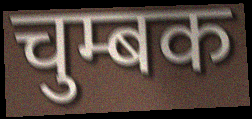
चुम्बक